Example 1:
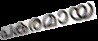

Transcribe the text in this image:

പകരമായ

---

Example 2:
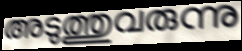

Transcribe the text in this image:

അടുത്തുവരുന്നു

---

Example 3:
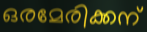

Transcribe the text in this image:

ഒരമേരിക്കന്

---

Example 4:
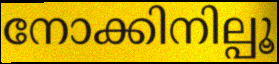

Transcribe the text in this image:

നോക്കിനില്പൂ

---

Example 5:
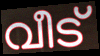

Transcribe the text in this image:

വീട്